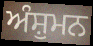
ਅੰਸ਼ੁਮਨ